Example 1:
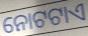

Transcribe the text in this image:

ନୋଟଟାଏ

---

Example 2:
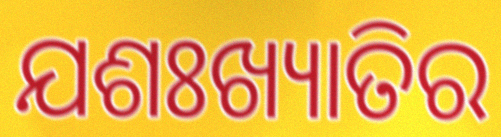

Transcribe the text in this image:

ଯଶଃଖ୍ୟାତିର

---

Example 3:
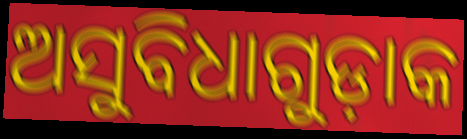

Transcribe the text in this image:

ଅସୁବିଧାଗୁଡ଼ାକ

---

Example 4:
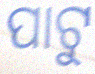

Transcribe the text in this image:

ପାଟୁ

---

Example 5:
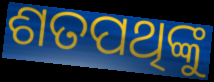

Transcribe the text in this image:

ଶତପଥିଙ୍କୁ